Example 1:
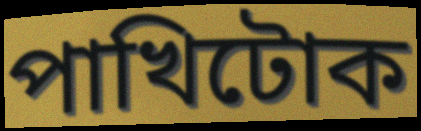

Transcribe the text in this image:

পাখিটোক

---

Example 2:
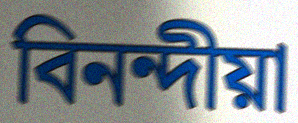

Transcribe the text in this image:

বিনন্দীয়া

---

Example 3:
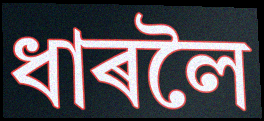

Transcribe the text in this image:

ধাৰলৈ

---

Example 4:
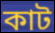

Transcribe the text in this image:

কাট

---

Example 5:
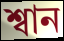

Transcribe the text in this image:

শ্বান